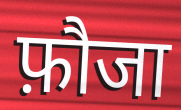
फ़ौजा